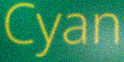
Cyan